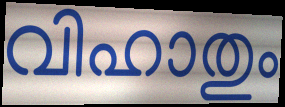
വിഹാതും